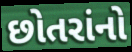
છોતરાંનો